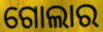
ଗୋଲାର